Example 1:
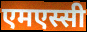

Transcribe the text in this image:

एमएस्सी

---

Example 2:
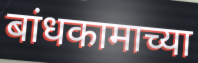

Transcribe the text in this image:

बांधकामाच्या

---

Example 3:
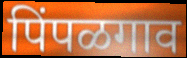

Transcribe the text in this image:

पिंपळगाव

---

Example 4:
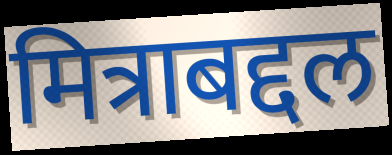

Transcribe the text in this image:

मित्राबद्दल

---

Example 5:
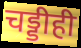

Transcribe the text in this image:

चड्डीही